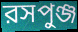
রসপুঞ্জ